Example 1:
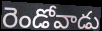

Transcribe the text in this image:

రెండోవాడు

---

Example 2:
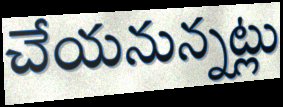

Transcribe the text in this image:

చేయనున్నట్లు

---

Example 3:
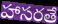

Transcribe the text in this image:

హాసరతే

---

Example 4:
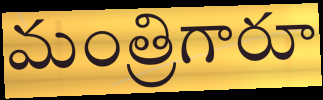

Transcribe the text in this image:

మంత్రిగారూ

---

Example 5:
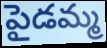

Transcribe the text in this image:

పైడమ్మ